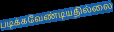
படிக்கவேண்டியதில்லை